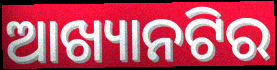
ଆଖ୍ୟାନଟିର